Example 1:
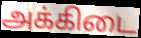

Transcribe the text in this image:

அக்கிடை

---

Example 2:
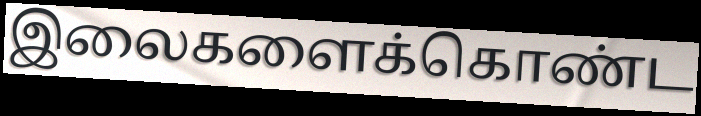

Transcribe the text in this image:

இலைகளைக்கொண்ட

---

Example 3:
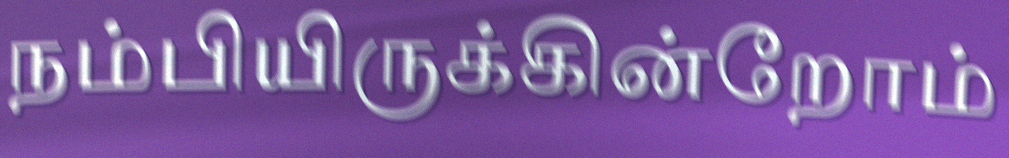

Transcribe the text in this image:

நம்பியிருக்கின்றோம்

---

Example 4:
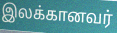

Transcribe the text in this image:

இலக்கானவர்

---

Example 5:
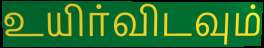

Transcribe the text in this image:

உயிர்விடவும்